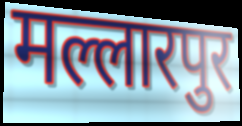
मल्लारपुर